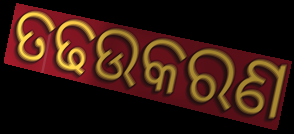
ତଢଉକରଣ